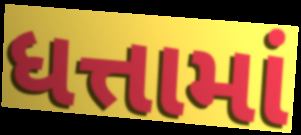
ધત્તામાં